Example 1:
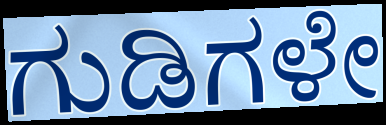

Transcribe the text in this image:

ಗುಡಿಗಳೇ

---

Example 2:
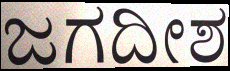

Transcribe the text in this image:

ಜಗದೀಶ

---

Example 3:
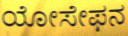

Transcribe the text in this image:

ಯೋಸೇಫನ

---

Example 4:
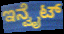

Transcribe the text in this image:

ಇನ್ವೈಟ್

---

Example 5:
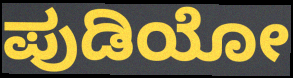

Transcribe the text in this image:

ಪುಡಿಯೋ